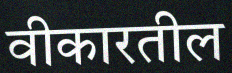
वीकारतील